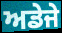
ਅਡੇਜੇ